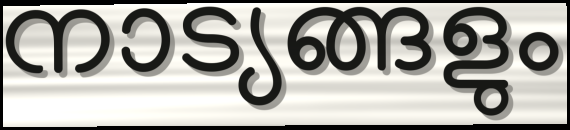
നാട്യങ്ങളും